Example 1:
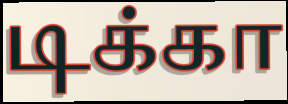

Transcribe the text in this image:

டிக்கா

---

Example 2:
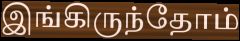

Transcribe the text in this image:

இங்கிருந்தோம்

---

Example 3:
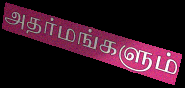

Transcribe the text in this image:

அதர்மங்களும்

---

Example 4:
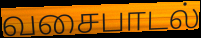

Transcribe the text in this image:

வசைபாடல்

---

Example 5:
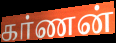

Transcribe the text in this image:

கர்ணன்